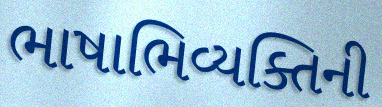
ભાષાભિવ્યક્તિની